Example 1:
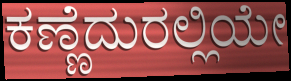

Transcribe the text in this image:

ಕಣ್ಣೆದುರಲ್ಲಿಯೇ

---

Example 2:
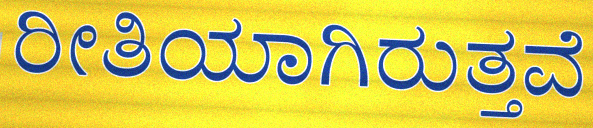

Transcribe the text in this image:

ರೀತಿಯಾಗಿರುತ್ತವೆ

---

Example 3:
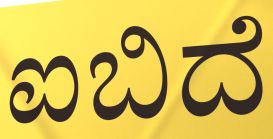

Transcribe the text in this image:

ಐಬಿದೆ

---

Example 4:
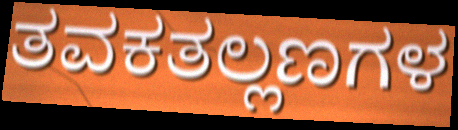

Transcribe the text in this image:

ತವಕತಲ್ಲಣಗಳ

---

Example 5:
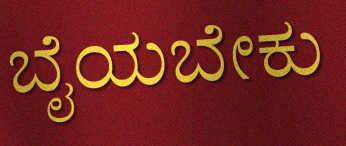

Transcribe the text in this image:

ಬೈಯಬೇಕು